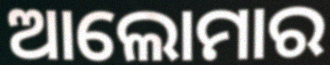
ଆଲୋମାର